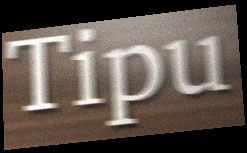
Tipu